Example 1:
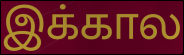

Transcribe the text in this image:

இக்கால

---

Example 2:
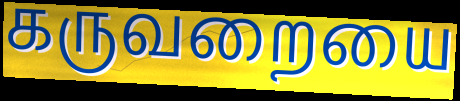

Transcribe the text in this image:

கருவறையை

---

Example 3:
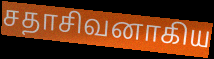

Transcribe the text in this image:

சதாசிவனாகிய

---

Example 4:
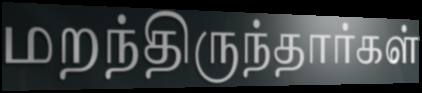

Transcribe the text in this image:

மறந்திருந்தார்கள்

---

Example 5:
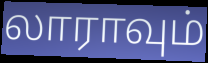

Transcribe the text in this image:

லாராவும்